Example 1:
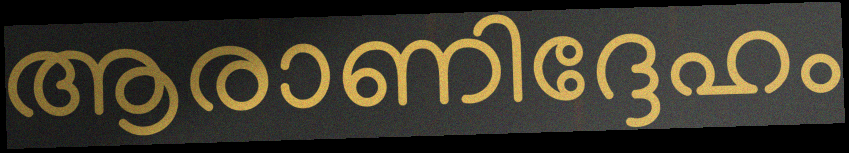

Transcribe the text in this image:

ആരാണിദ്ദേഹം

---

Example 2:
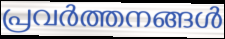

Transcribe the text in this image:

പ്രവർത്തനങ്ങൾ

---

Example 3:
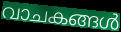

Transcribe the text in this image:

വാചകങ്ങൾ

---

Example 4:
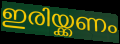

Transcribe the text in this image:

ഇരിയ്ക്കണം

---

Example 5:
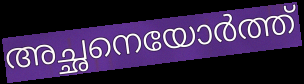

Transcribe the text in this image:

അച്ഛനെയോർത്ത്